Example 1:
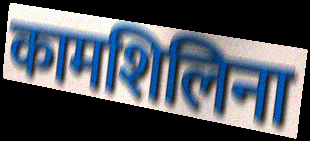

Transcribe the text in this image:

कामशिलिना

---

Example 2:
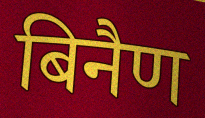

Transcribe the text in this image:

बिनैण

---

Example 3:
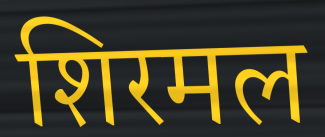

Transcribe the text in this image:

शिरमल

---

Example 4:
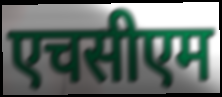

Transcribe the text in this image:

एचसीएम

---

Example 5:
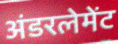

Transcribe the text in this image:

अंडरलेमेंट